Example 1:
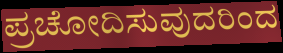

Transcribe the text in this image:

ಪ್ರಚೋದಿಸುವುದರಿಂದ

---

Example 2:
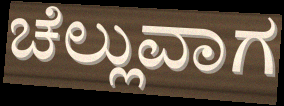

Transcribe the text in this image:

ಚೆಲ್ಲುವಾಗ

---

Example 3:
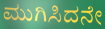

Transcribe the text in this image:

ಮುಗಿಸಿದನೇ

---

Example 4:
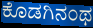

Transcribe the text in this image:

ಕೊಡಗಿನಂಥ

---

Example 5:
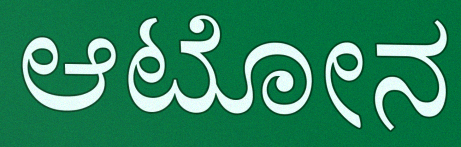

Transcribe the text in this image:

ಆಟೋನ